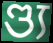
ণ্ড্য